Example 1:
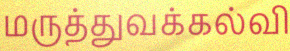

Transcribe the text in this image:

மருத்துவக்கல்வி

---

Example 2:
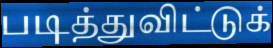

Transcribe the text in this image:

படித்துவிட்டுக்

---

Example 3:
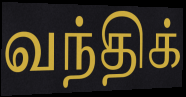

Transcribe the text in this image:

வந்திக்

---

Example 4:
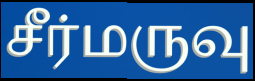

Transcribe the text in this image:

சீர்மருவு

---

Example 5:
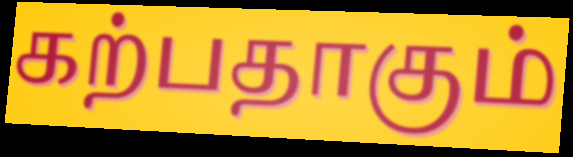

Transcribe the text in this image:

கற்பதாகும்